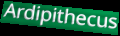
Ardipithecus